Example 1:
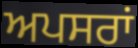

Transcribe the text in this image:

ਅਪਸਰਾਂ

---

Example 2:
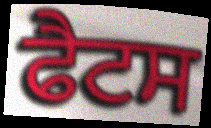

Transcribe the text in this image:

ਫੈਟਸ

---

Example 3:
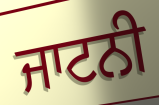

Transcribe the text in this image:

ਜਾਟਨੀ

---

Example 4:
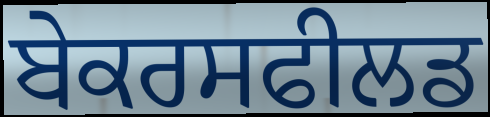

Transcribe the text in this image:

ਬੇਕਰਸਫੀਲਡ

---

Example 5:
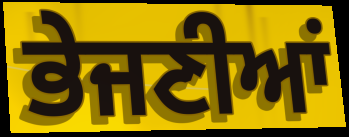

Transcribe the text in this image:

ਭੇਜਣੀਆਂ